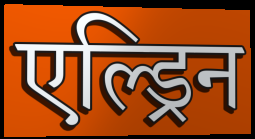
एल्ड्रिन